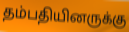
தம்பதியினருக்கு